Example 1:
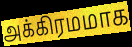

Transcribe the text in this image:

அக்கிரமமாக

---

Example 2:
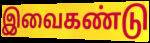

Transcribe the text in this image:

இவைகண்டு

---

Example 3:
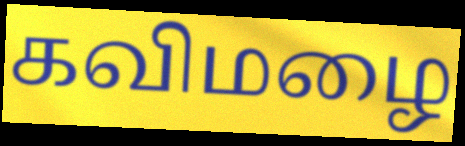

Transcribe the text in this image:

கவிமழை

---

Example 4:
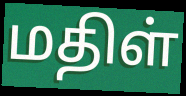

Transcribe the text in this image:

மதிள்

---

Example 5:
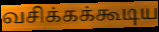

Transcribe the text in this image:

வசிக்கக்கூடிய